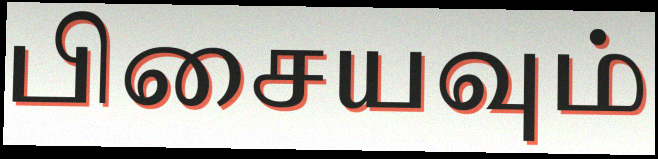
பிசையவும்